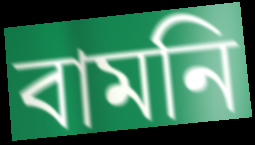
বামনি